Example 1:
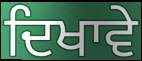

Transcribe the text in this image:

ਦਿਖਾਵੇ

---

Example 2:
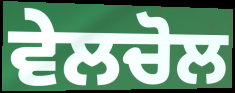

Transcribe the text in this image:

ਵੇਲਚੋਲ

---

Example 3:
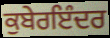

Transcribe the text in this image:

ਕੁਬੇਰਇੰਦਰ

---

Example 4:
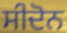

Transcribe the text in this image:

ਸੀਦੋਨ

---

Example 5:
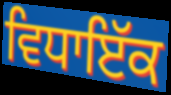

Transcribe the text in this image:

ਵਿਧਾਇੱਕ